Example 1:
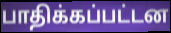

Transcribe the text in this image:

பாதிக்கப்பட்டன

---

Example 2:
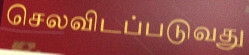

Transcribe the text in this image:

செலவிடப்படுவது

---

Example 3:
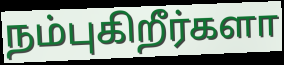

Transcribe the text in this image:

நம்புகிறீர்களா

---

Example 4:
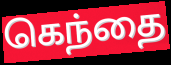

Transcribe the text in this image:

கெந்தை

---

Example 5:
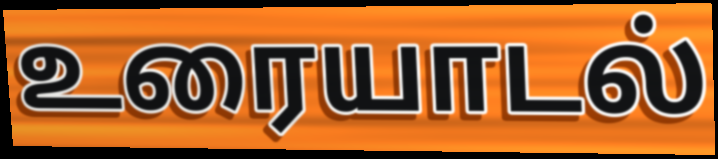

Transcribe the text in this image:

உரையாடல்